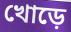
খোড়ে